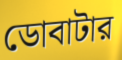
ডোবাটার